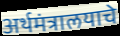
अर्थमंत्रालयाचे